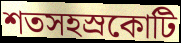
শতসহস্রকোটি